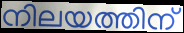
നിലയത്തിന്